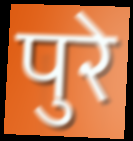
पुरे